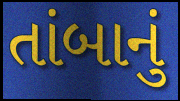
તાંબાનું